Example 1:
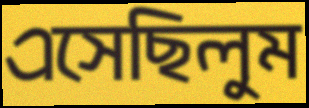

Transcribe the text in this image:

এসেছিলুম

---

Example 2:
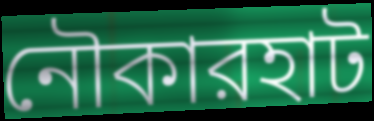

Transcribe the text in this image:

নৌকারহাট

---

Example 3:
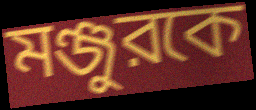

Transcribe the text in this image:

মঞ্জুরকে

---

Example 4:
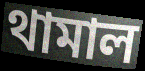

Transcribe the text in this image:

থামাল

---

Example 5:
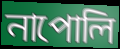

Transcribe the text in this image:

নাপোলি